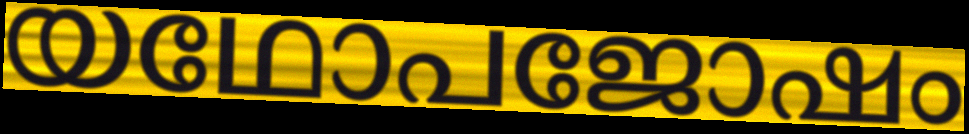
യഥോപജോഷം